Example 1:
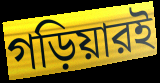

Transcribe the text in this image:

গড়িয়ারই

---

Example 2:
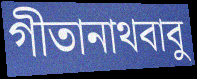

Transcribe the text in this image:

গীতানাথবাবু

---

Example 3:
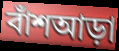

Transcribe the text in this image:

বাঁশআড়া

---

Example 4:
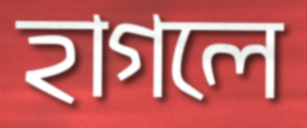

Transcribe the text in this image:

হাগলে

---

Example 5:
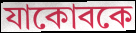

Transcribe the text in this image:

যাকোবকে